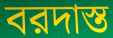
বরদাস্ত